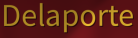
Delaporte